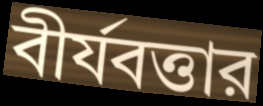
বীর্যবত্তার